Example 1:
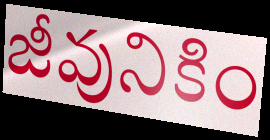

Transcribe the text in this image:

జీవునికిం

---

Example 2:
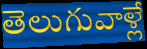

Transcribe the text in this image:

తెలుగువాళ్లే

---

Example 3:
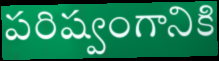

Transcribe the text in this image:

పరిష్వంగానికి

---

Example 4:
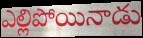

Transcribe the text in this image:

ఎల్లిపోయినాడు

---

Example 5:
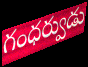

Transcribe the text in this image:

గంధర్వుడు